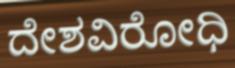
ದೇಶವಿರೋಧಿ